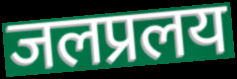
जलप्रलय